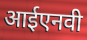
आईएनवी